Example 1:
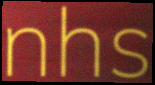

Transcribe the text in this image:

nhs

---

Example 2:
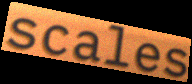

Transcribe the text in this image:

scales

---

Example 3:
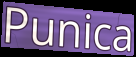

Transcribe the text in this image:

Punica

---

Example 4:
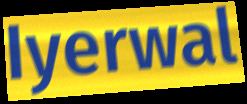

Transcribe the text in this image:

Iyerwal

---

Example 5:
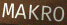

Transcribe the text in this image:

MAKRO